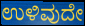
ಉಳಿವುದೇ